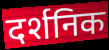
दर्शनिक